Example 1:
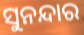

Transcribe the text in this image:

ସୁନନ୍ଦାର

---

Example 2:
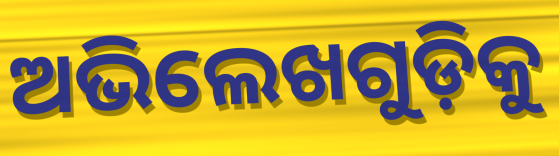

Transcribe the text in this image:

ଅଭିଲେଖଗୁଡ଼ିକୁ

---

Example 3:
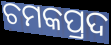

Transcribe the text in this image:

ଚମକପ୍ରଦ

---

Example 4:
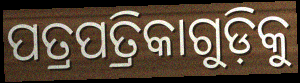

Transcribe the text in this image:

ପତ୍ରପତ୍ରିକାଗୁଡ଼ିକୁ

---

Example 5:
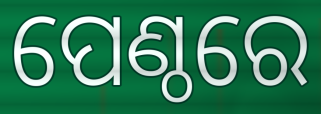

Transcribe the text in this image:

ପେଣ୍ଠରେ